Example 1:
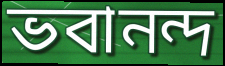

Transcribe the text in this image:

ভবানন্দ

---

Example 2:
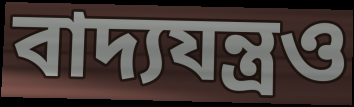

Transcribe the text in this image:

বাদ্যযন্ত্রও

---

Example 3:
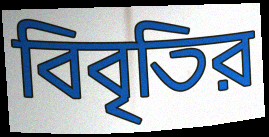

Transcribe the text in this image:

বিবৃতির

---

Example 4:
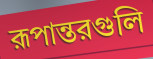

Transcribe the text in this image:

রূপান্তরগুলি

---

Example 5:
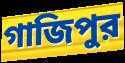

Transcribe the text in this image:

গাজিপুর